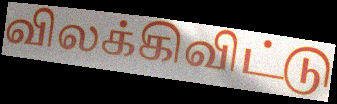
விலக்கிவிட்டு